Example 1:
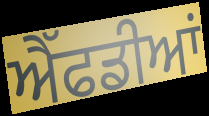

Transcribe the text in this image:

ਐੱਫਡੀਆਂ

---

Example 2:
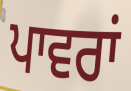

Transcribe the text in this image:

ਪਾਵਰਾਂ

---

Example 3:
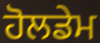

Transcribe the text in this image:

ਹੋਲਡੇਮ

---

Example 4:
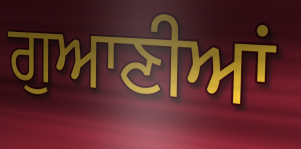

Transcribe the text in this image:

ਗੁਆਣੀਆਂ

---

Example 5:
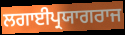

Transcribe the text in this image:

ਲਗਾਈਪ੍ਰਯਾਗਰਾਜ